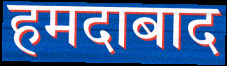
हमदाबाद